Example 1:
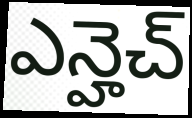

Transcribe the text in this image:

ఎన్హెచ్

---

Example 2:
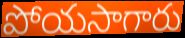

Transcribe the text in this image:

పోయసాగారు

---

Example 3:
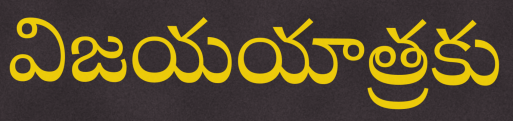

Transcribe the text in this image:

విజయయాత్రకు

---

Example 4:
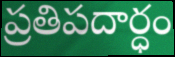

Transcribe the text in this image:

ప్రతిపదార్ధం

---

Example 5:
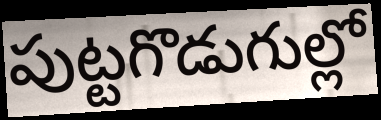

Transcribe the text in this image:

పుట్టగొడుగుల్లో